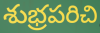
శుభ్రపరిచి